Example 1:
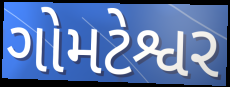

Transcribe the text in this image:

ગોમટેશ્વર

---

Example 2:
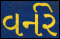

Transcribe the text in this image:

વર્નરે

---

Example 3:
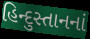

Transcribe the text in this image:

હિન્દુસ્તાનનાં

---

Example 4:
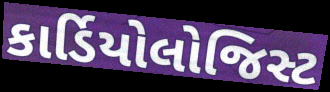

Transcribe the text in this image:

કાર્ડિયોલોજિસ્ટ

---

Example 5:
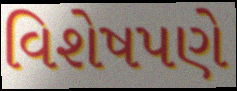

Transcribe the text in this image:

વિશેષપણે